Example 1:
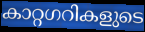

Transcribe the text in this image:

കാറ്റഗറികളുടെ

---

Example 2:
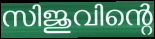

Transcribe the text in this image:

സിജുവിന്റെ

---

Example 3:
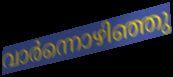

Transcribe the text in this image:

വാർന്നൊഴിഞ്ഞു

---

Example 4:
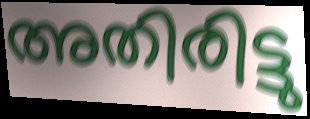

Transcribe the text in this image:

അതിരിട്ടു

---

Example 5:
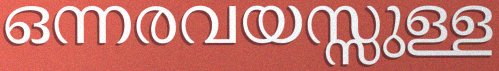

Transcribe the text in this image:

ഒന്നരവയസ്സുള്ള